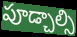
పూడ్చాల్సి